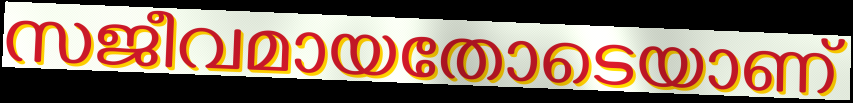
സജീവമായതോടെയാണ്